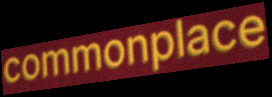
commonplace